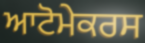
ਆਟੋਮੇਕਰਸ